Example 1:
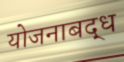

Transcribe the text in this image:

योजनाबद्ध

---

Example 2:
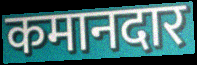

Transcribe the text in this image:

कमानदार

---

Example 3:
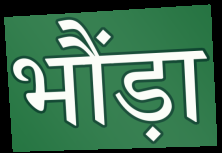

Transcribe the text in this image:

भौंड़ा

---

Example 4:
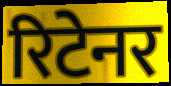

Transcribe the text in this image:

रिटेनर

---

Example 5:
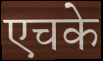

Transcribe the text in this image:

एचके